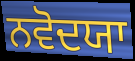
ਨਵੋਦਯਾ